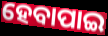
ହେବାପାଇ